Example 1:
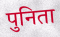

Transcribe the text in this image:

पुनिता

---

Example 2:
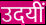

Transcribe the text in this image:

उदयीं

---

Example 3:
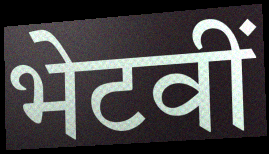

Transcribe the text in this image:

भेटवीं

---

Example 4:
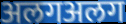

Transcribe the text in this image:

अलगअलग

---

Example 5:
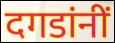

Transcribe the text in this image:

दगडांनीं